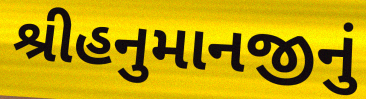
શ્રીહનુમાનજીનું